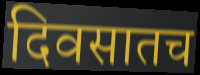
दिवसातच